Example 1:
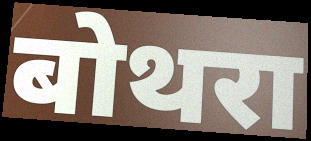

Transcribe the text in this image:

बोथरा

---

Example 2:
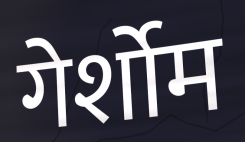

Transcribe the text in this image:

गेर्शोम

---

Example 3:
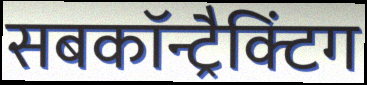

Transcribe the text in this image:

सबकॉन्ट्रैक्टिंग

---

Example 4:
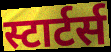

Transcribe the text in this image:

स्टार्टर्स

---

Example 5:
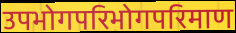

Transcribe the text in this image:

उपभोगपरिभोगपरिमाण